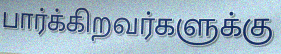
பார்க்கிறவர்களுக்கு